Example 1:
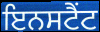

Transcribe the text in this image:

ਇਨਸਟੈਂਟ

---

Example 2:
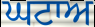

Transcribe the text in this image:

ਘਟਾਅ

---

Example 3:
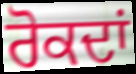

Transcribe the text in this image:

ਰੋਕਦਾਂ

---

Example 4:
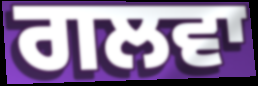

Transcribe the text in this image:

ਗਲਵਾ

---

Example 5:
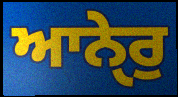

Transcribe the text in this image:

ਆਨੇੑਰੁ